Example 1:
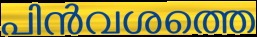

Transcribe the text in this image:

പിൻവശത്തെ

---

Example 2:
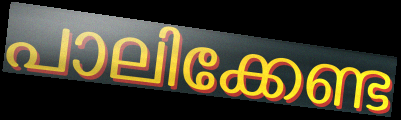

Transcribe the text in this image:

പാലിക്കേണ്ട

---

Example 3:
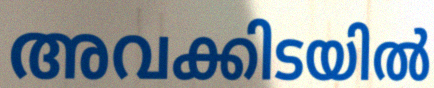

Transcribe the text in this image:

അവക്കിടയിൽ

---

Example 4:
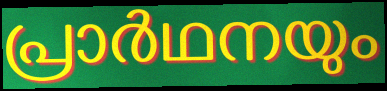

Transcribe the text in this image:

പ്രാർഥനയും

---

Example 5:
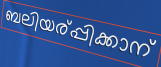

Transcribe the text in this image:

ബലിയര്പ്പിക്കാന്